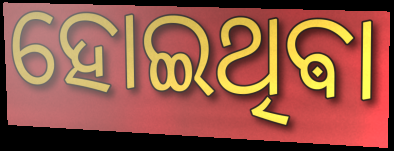
ହୋଇଥିଵା